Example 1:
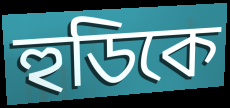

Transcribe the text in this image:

হুডিকে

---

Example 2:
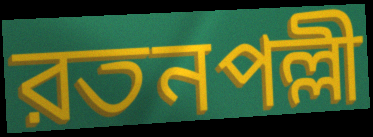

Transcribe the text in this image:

রতনপল্লী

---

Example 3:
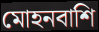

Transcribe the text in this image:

মোহনবাশি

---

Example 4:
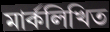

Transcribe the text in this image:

মার্কলিখিত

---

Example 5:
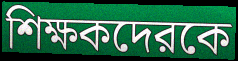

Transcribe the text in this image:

শিক্ষকদেরকে